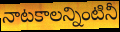
నాటకాలన్నింటినీ